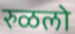
रुळलो